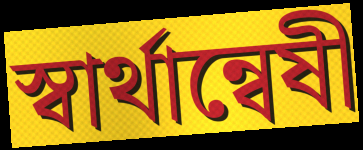
স্বার্থান্বেষী